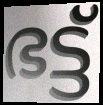
ഭട്ട്